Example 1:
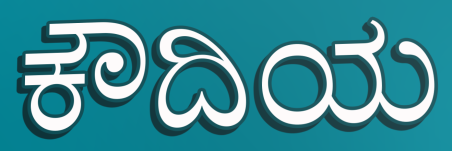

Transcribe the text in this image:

ಕೌದಿಯ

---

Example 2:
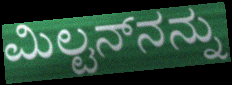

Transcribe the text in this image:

ಮಿಲ್ಟನ್‌ನನ್ನು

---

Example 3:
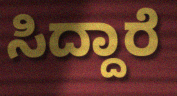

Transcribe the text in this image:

ಸಿದ್ದಾರೆ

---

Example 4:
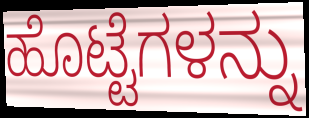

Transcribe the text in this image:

ಹೊಟ್ಟೆಗಳನ್ನು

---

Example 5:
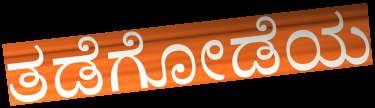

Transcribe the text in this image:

ತಡೆಗೋಡೆಯ